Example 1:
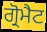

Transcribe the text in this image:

ਗ੍ਰੋਮੈਟ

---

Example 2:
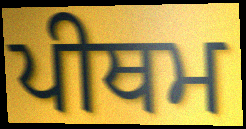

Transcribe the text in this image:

ਪੀਥਮ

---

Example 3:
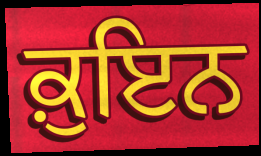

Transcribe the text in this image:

ਕ਼ੁਇਨ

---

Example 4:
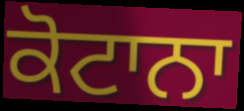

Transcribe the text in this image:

ਕੋਟਾਨਾ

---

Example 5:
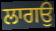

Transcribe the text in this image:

ਲਾਗਉ